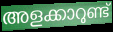
അളക്കാറുണ്ട്